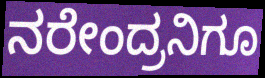
ನರೇಂದ್ರನಿಗೂ